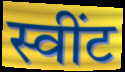
स्वींट